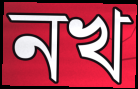
নখ